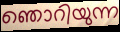
ഞൊറിയുന്ന